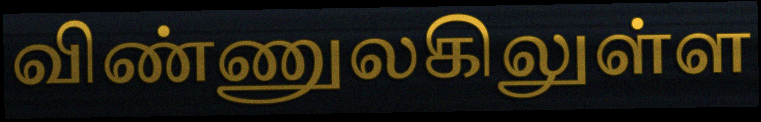
விண்ணுலகிலுள்ள